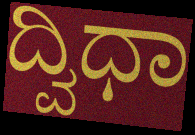
ದ್ವಿಧಾ